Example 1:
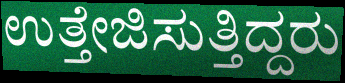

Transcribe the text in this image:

ಉತ್ತೇಜಿಸುತ್ತಿದ್ದರು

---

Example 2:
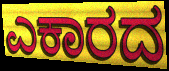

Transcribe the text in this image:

ಎಕಾರದ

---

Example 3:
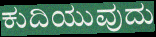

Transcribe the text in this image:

ಕುದಿಯುವುದು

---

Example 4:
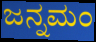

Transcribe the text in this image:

ಜನ್ನಮಂ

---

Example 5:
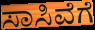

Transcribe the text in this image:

ಸಾಸಿವೆಗೆ